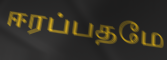
ஈரப்பதமே